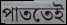
পাততেই